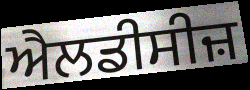
ਐਲਡੀਸੀਜ਼